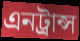
এনট্রান্স